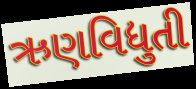
ઋણવિદ્યુતી